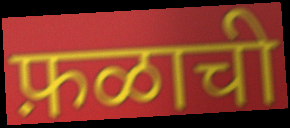
फ़ळाची